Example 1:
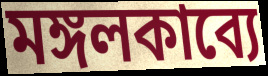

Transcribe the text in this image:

মঙ্গলকাব্যে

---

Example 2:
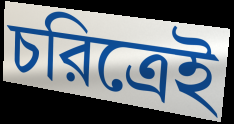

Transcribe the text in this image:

চরিত্রেই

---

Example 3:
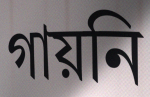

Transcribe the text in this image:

গায়নি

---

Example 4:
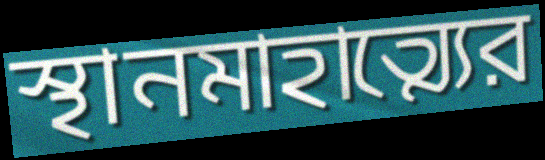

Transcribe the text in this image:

স্থানমাহাত্ম্যের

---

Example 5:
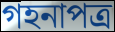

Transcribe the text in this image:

গহনাপত্র